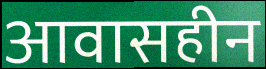
आवासहीन